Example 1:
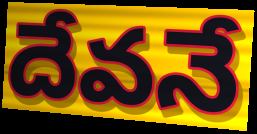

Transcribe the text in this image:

దేవనే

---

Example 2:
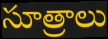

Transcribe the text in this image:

సూత్రాలు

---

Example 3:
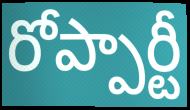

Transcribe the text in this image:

రోప్పార్టీ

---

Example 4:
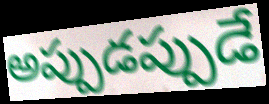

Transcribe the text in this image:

అప్పుడప్పుడే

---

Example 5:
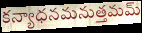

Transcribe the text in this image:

కన్యాధనమనుత్తమమ్